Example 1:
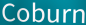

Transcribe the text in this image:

Coburn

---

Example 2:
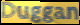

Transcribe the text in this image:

Duggan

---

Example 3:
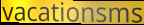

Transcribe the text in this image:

vacationsms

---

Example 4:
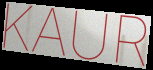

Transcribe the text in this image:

KAUR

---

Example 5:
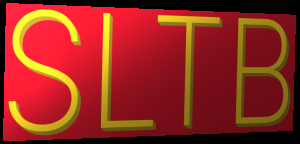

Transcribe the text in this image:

SLTB